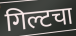
गिल्टचा